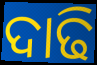
ଦାଢି